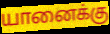
யானைக்கு